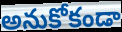
అనుకోకండా